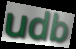
udb